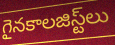
గైనకాలజిస్ట్‌లు